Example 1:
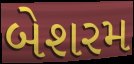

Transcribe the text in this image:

બેશરમ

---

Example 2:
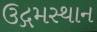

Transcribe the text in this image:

ઉદ્ગમસ્થાન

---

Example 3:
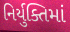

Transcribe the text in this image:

નિર્યુક્તિમાં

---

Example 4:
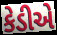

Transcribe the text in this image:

કેડીએ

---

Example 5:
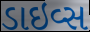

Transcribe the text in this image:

ડાઇવ્સ